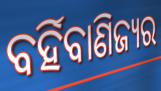
ବର୍ହିବାଣିଜ୍ୟର